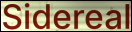
Sidereal